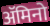
ॲमिनो